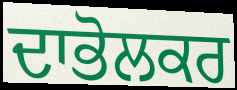
ਦਾਭੋਲਕਰ